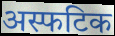
अस्फटिक